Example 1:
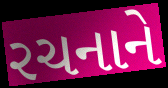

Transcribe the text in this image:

રચનાને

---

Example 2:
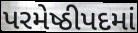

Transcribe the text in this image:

પરમેષ્ઠીપદમાં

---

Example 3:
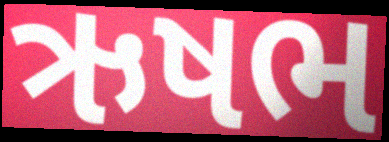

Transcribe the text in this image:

ઋષભ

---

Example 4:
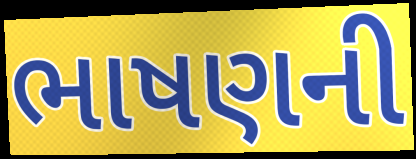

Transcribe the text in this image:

ભાષણની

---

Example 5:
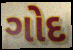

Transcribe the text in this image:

ગોદ